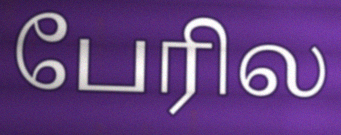
பேரில